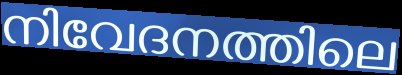
നിവേദനത്തിലെ